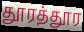
தூரத்தூர